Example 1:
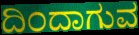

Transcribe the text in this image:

ದಿಂದಾಗುವ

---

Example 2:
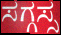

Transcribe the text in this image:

ಸಗ್ಗಸ್ಸ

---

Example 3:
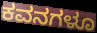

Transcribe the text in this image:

ಕವನಗಳೂ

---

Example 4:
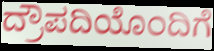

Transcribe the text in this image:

ದ್ರೌಪದಿಯೊಂದಿಗೆ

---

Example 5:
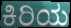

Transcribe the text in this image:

ಕಿರಿಯ